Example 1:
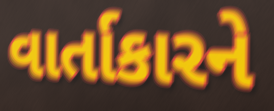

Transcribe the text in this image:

વાર્તાકારને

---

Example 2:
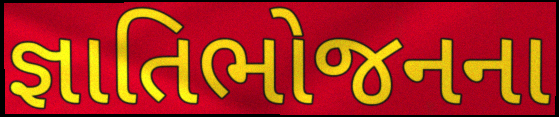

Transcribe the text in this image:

જ્ઞાતિભોજનના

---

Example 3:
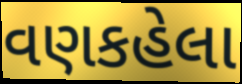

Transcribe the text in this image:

વણકહેલા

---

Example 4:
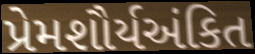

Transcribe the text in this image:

પ્રેમશૌર્યઅંકિત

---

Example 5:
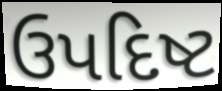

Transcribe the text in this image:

ઉપદિષ્ટ